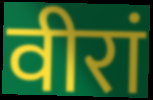
वीरां